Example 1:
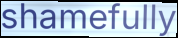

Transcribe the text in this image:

shamefully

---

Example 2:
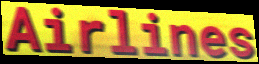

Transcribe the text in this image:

Airlines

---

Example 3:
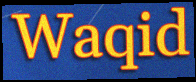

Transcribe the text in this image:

Waqid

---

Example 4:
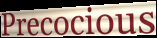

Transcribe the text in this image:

Precocious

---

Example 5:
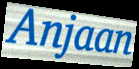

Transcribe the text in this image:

Anjaan